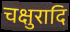
चक्षुरादि